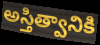
అస్తిత్వానికి